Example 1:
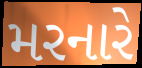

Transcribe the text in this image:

મરનારે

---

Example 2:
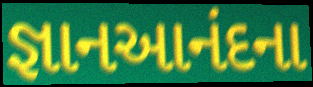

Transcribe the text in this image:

જ્ઞાનઆનંદના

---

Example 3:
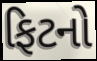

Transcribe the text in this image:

ફિટનો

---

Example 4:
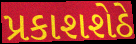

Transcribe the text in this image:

પ્રકાશશેઠે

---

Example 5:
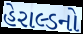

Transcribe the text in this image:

હેરાલ્ડનો